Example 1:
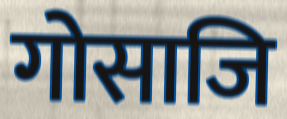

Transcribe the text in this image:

गोसाजि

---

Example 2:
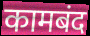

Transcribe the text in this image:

कामबंद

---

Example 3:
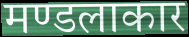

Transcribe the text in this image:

मण्डलाकार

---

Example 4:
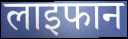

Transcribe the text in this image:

लाइफान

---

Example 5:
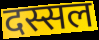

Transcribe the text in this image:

दस्सल